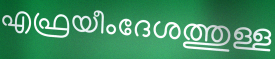
എഫ്രയീംദേശത്തുള്ള